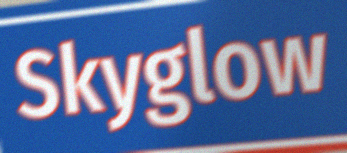
Skyglow